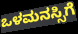
ಒಳಮನಸ್ಸಿಗೆ